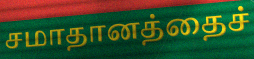
சமாதானத்தைச்